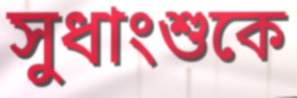
সুধাংশুকে